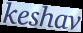
keshav